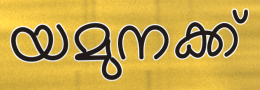
യമുനക്ക്